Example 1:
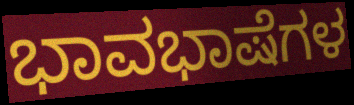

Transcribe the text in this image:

ಭಾವಭಾಷೆಗಳ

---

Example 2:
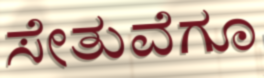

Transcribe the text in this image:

ಸೇತುವೆಗೂ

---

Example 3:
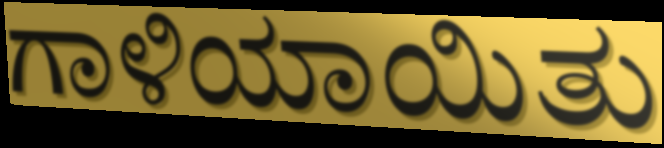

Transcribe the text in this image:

ಗಾಳಿಯಾಯಿತು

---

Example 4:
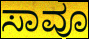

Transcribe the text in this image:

ಸಾವೂ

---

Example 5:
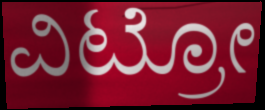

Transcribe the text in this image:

ವಿಟ್ರೋ